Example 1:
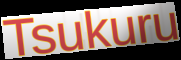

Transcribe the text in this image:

Tsukuru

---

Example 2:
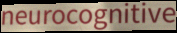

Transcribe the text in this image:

neurocognitive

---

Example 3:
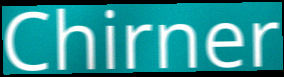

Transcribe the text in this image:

Chirner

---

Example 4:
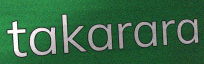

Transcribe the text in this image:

takarara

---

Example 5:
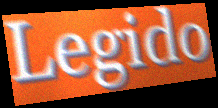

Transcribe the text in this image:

Legido